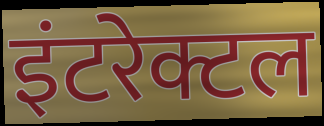
इंटरेक्टल